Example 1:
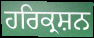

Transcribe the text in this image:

ਹਰਿਕ੍ਰਸ਼ਨ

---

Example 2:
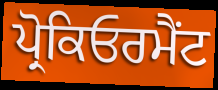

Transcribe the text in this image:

ਪ੍ਰੋਕਿਓਰਮੈਂਟ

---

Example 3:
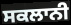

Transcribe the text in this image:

ਸਕਲਾਨੀ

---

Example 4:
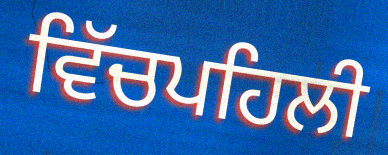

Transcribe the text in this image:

ਵਿੱਚਪਹਿਲੀ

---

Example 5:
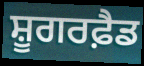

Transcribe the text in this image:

ਸ਼ੂਗਰਫ਼ੈਡ